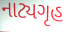
નાટ્યગૃહ